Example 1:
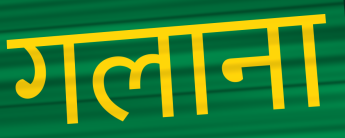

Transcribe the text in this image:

गलाना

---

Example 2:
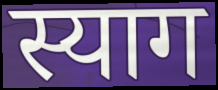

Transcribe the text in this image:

स्याग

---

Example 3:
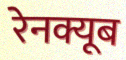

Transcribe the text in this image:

रेनक्यूब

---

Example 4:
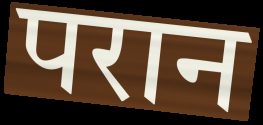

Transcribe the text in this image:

परान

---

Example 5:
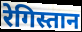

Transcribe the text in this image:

रेगिस्तान